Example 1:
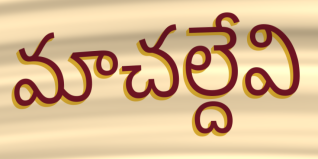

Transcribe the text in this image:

మాచల్దేవి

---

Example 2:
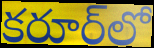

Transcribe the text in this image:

కరూర్‌లో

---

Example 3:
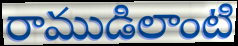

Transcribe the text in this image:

రాముడిలాంటి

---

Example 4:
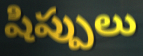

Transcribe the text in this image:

షిప్పులు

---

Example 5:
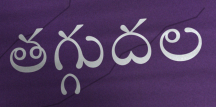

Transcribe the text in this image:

తగ్గుదల